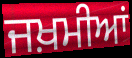
ਜਖ਼ਮੀਆਂ